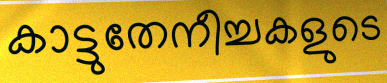
കാട്ടുതേനീച്ചകളുടെ